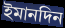
ইমানদিন